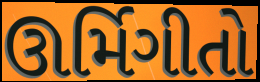
ઊર્મિગીતો